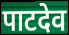
पाटदेव